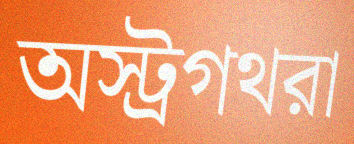
অস্ট্রগথরা